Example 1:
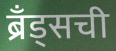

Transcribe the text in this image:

ब्रॅंड्सची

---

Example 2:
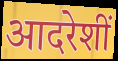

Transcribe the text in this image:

आदरेशीं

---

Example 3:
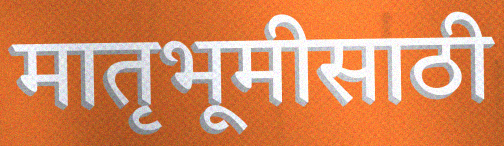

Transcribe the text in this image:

मातृभूमीसाठी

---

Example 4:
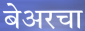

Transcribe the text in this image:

बेअरचा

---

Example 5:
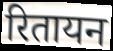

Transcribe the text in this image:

रितायन